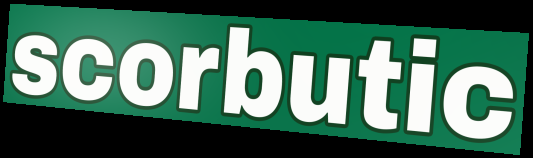
scorbutic